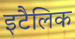
इटैलिक